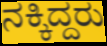
ನಕ್ಕಿದ್ದರು